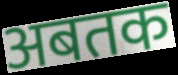
अबतक